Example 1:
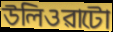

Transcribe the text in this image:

উলিওৱাটো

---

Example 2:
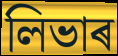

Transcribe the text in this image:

লিভাৰ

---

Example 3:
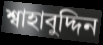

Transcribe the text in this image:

শ্বাহাবুদ্দিন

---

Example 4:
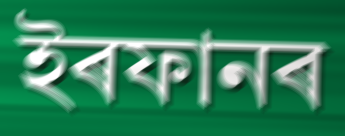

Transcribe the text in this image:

ইৰফানৰ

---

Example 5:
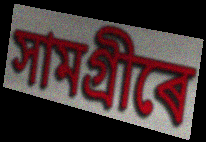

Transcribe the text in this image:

সামগ্ৰীৰে